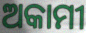
ଅକାମୀ